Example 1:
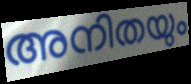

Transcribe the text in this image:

അനിതയും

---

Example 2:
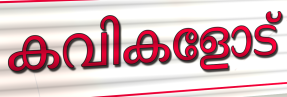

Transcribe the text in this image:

കവികളോട്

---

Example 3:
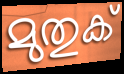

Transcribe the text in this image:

മുതുക്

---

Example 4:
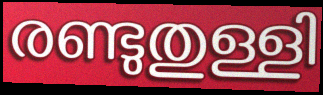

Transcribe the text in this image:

രണ്ടുതുള്ളി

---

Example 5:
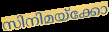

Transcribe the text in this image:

സിനിമയ്ക്കോ